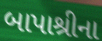
બાપાશ્રીના